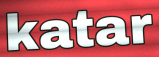
katar